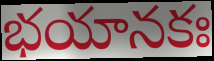
భయానకః